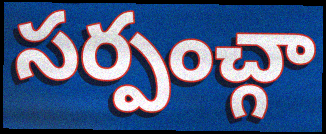
సర్పంచ్గా